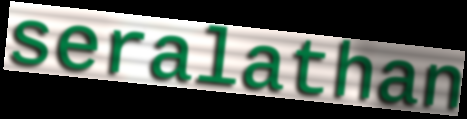
seralathan